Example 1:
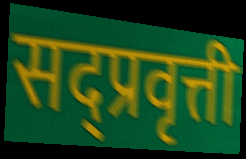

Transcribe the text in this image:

सद्प्रवृत्ती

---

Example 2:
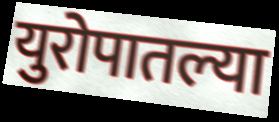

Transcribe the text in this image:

युरोपातल्या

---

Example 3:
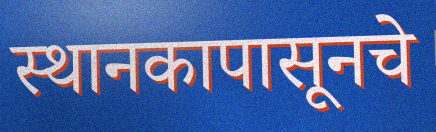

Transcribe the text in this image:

स्थानकापासूनचे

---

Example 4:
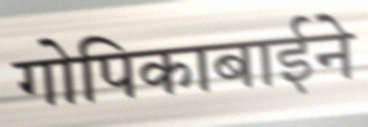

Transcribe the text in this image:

गोपिकाबाईने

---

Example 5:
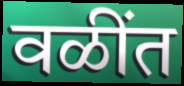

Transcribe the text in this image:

वळींत